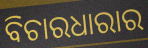
ବିଚାରଧାରାର